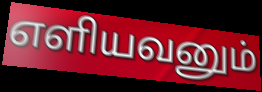
எளியவனும்